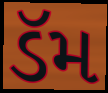
ડૅમ